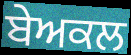
ਬੇਅਕਲ